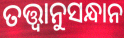
ତତ୍ତ୍ବାନୁସନ୍ଧାନ